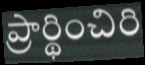
ప్రార్థించిరి